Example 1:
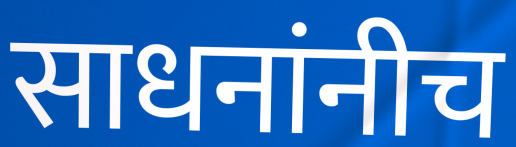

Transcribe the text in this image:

साधनांनीच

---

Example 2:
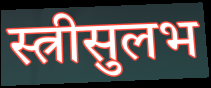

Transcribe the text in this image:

स्त्रीसुलभ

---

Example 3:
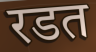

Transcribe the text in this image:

रडत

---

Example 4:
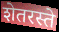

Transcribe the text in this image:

शेतरस्ते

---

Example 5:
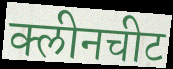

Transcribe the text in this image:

क्लीनचीट